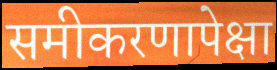
समीकरणापेक्षा